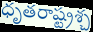
ధృతరాష్ట్రశ్చ